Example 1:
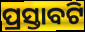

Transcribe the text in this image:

ପ୍ରସ୍ତାବଟି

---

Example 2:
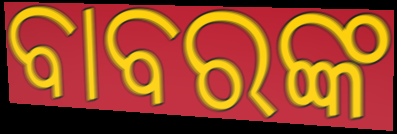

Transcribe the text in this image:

ବାବରଙ୍କ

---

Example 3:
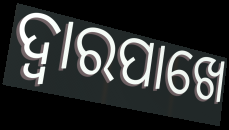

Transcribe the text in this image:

ଦ୍ୱାରପାଖେ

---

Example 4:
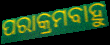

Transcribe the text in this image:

ପରାକ୍ରମବାହୁ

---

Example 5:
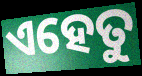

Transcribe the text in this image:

ଏହେତୁ